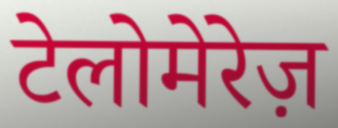
टेलोमेरेज़